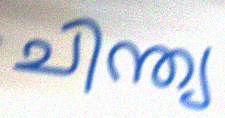
ചിന്ത്യ